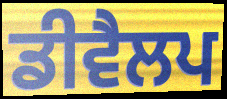
ਡੀਵੈਲਪ